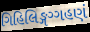
ગિહિલિઙ્ગગ્ગહણં